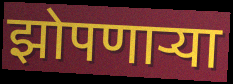
झोपणार्‍या